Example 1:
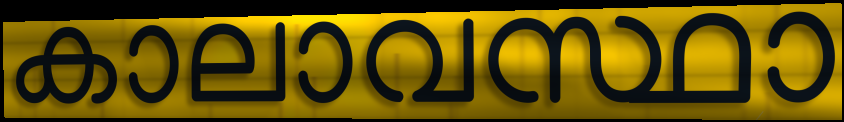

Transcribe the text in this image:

കാലാവസ്ഥാ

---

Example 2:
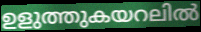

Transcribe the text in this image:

ഉളുത്തുകയറലിൽ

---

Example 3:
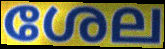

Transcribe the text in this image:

ശേല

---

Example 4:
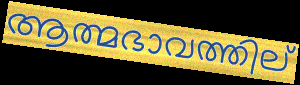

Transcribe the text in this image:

ആത്മഭാവത്തില്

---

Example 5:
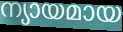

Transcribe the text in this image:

ന്യായമായ